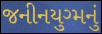
જનીનયુગ્મનું